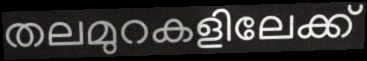
തലമുറകളിലേക്ക്